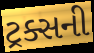
ટ્રક્સની